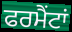
ਫਰਮੈਂਟਾਂ